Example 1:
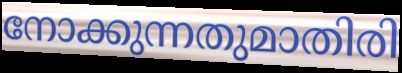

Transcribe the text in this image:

നോക്കുന്നതുമാതിരി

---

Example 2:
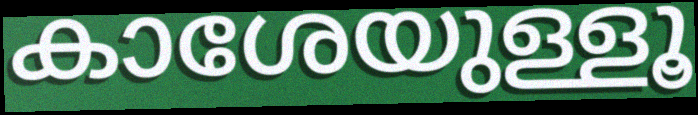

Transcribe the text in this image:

കാശേയുള്ളൂ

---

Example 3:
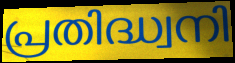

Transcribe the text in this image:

പ്രതിദ്ധ്വനി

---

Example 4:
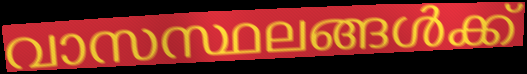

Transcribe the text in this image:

വാസസ്ഥലങ്ങൾക്ക്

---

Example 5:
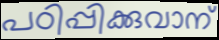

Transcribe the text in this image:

പഠിപ്പിക്കുവാന്